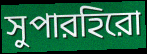
সুপারহিরো